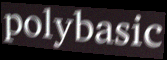
polybasic